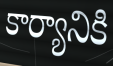
కార్యానికి